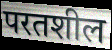
परतशील